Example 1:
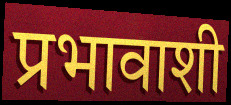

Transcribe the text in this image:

प्रभावाशी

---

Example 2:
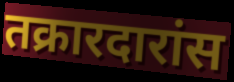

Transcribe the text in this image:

तक्रारदारांस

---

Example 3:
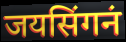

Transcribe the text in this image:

जयसिंगनं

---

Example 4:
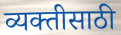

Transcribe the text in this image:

व्यक्तीसाठी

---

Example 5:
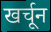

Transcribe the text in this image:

खर्चून